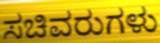
ಸಚಿವರುಗಳು